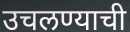
उचलण्याची